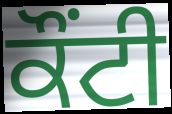
ਕੌਂਟੀ